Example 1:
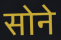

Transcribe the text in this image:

सोने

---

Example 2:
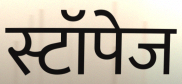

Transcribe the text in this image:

स्टॉपेज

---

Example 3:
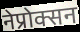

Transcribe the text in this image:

नेप्रोक्सन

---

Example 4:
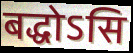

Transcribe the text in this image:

बद्धोऽसि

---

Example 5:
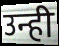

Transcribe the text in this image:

उन्ही